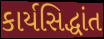
કાર્યસિદ્ધાંત